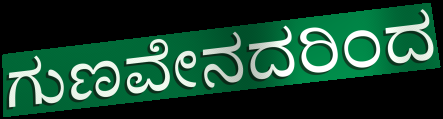
ಗುಣವೇನದರಿಂದ